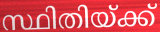
സ്ഥിതിയ്ക്ക്